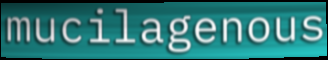
mucilagenous